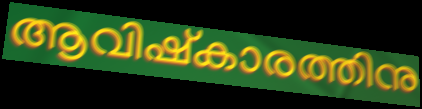
ആവിഷ്കാരത്തിനു